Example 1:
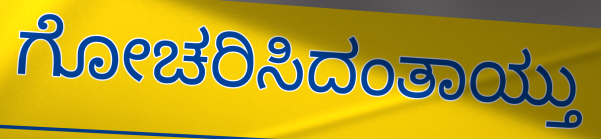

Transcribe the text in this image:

ಗೋಚರಿಸಿದಂತಾಯ್ತು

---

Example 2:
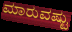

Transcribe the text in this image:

ಮಾರುವಷ್ಟು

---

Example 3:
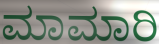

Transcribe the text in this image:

ಮಾಮಾರಿ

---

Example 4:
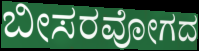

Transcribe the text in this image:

ಬೀಸರವೋಗದ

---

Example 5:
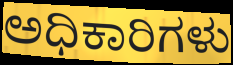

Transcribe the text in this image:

ಅಧಿಕಾರಿಗಳು